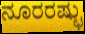
ನೂರರಷ್ಟು